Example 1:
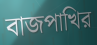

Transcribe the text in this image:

বাজপাখির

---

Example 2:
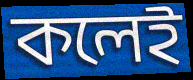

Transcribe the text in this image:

কলেই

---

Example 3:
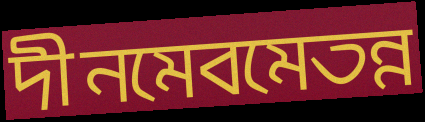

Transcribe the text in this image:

দীনমেবমেতন্ন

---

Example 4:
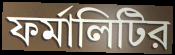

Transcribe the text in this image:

ফর্মালিটির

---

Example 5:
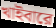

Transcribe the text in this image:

খাইবারে